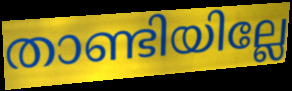
താണ്ടിയില്ലേ